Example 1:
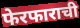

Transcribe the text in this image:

फेरफाराची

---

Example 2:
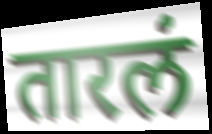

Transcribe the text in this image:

तारलं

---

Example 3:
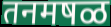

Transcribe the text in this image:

तनमषळ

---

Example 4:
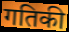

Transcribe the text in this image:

गतिकी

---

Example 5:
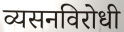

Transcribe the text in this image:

व्यसनविरोधी